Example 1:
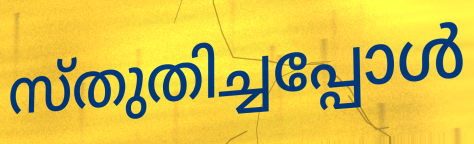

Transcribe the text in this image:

സ്തുതിച്ചപ്പോൾ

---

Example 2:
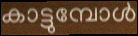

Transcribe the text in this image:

കാട്ടുമ്പോൾ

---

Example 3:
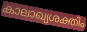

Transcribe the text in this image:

കാലാഖ്യശക്തിം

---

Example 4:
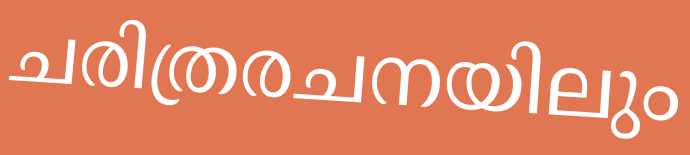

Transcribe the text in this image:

ചരിത്രരചനയിലും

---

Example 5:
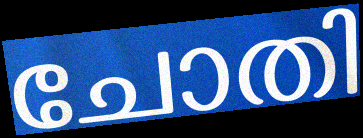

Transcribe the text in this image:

ചോതി